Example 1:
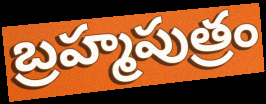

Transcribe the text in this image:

బ్రహ్మపుత్రం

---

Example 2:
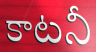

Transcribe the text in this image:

కాటనీ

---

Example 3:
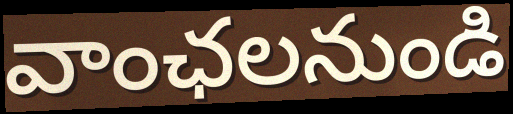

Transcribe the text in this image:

వాంఛలనుండి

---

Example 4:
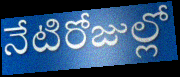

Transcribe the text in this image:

నేటిరోజుల్లో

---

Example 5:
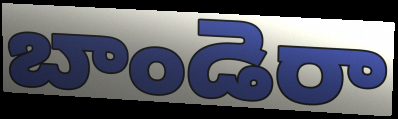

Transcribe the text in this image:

బాండెరా